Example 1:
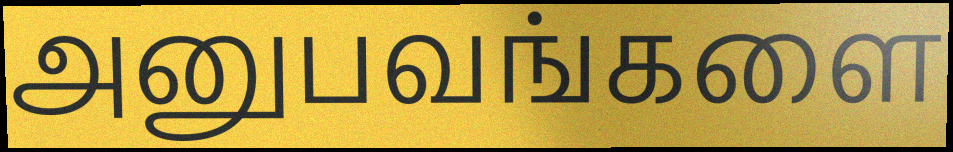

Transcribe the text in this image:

அனுபவங்களை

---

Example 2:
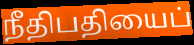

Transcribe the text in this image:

நீதிபதியைப்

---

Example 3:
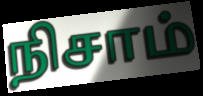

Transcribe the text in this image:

நிசாம்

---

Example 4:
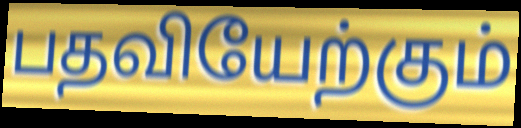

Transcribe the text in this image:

பதவியேற்கும்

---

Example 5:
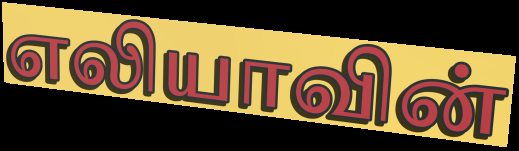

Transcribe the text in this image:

எலியாவின்